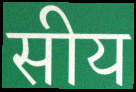
सीय